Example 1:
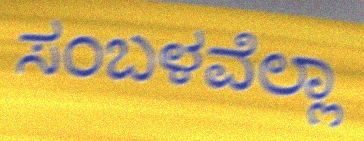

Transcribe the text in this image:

ಸಂಬಳವೆಲ್ಲಾ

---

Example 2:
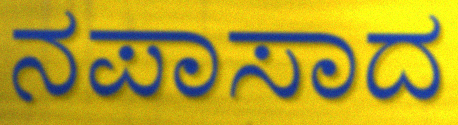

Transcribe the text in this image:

ನಪಾಸಾದ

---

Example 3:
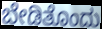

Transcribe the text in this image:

ಬೇಡಿತೊಂದು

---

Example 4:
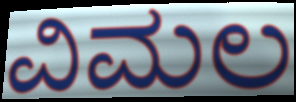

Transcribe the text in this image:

ವಿಮಲ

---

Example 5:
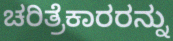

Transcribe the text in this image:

ಚರಿತ್ರೆಕಾರರನ್ನು